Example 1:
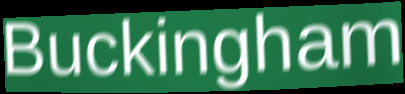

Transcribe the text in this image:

Buckingham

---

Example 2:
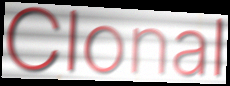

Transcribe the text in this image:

Clonal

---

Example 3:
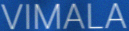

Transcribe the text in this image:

VIMALA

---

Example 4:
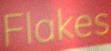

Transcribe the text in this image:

Flakes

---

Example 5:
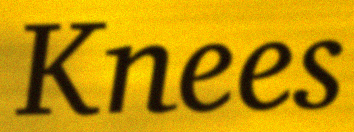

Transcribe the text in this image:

Knees